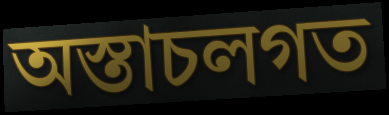
অস্তাচলগত